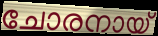
ചോരനായ്